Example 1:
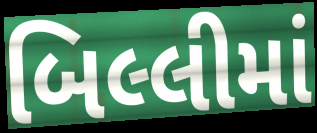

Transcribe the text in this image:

બિલ્લીમાં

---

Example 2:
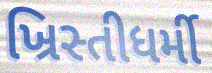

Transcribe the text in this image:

ખ્રિસ્તીધર્મી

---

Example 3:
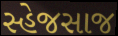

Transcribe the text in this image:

સ્હેજસાજ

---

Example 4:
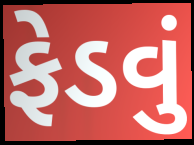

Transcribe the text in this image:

ફેડવું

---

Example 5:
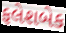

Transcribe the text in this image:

ફલેશબેક